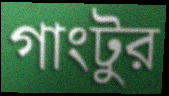
গাংটুর